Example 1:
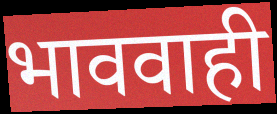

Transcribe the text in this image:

भाववाही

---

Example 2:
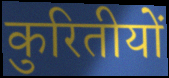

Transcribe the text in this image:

कुरितीयों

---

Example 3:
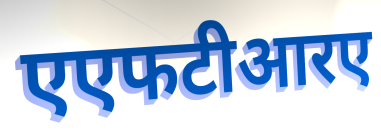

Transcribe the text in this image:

एएफटीआरए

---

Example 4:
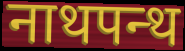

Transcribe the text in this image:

नाथपन्थ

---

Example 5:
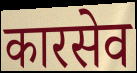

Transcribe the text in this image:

कारसेव